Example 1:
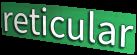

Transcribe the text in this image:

reticular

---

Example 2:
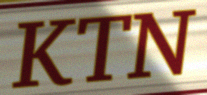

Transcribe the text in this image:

KTN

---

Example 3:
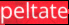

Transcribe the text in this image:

peltate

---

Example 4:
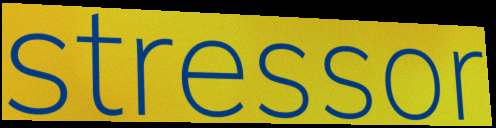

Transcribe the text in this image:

stressor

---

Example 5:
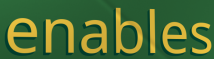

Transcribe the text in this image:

enables